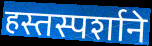
हस्तस्पर्शाने